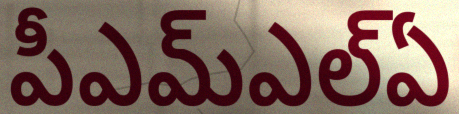
పీఎమ్ఎల్ఏ